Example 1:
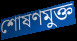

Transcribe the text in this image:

শোষণমুক্ত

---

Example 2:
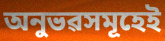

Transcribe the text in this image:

অনুভৱসমূহেই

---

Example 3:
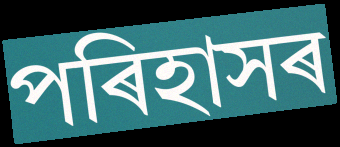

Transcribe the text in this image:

পৰিহাসৰ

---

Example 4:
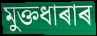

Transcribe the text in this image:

মুক্তধাৰাৰ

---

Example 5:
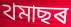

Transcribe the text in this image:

থমাছৰ